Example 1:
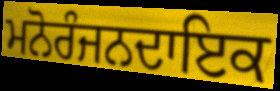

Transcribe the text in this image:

ਮਨੋਰੰਜਨਦਾਇਕ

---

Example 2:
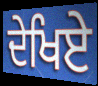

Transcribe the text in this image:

ਦੇਖਿਏ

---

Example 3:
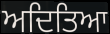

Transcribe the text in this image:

ਅਦਿਤਿਆ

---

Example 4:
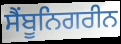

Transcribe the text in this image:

ਸੈਂਬੂਨਿਗਰੀਨ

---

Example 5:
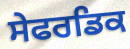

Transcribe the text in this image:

ਸੇਫਰਡਿਕ